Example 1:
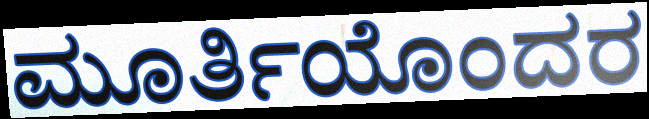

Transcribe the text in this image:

ಮೂರ್ತಿಯೊಂದರ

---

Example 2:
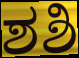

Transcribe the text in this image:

ಶಶಿ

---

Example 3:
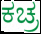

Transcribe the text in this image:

ಕಚ್ರ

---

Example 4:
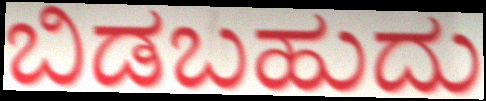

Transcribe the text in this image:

ಬಿಡಬಹುದು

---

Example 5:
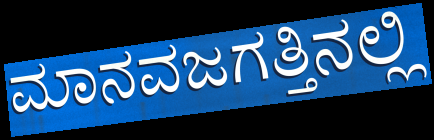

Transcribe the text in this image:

ಮಾನವಜಗತ್ತಿನಲ್ಲಿ